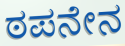
ಠಪನೇನ